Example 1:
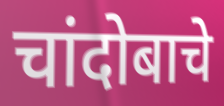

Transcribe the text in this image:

चांदोबाचे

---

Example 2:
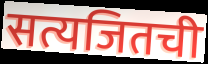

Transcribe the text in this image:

सत्यजितची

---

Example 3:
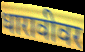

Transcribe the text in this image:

धारावीवर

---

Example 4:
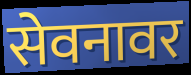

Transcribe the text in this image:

सेवनावर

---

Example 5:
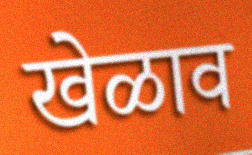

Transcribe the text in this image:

खेळाव